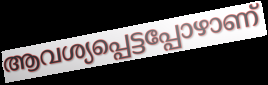
ആവശ്യപ്പെട്ടപ്പോഴാണ്